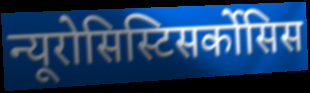
न्यूरोसिस्टिसर्कोसिस